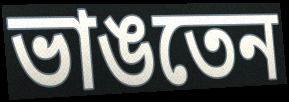
ভাঙতেন